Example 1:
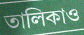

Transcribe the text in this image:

তালিকাও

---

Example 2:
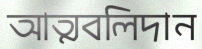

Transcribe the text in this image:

আত্মবলিদান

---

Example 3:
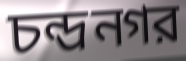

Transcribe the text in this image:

চন্দ্রনগর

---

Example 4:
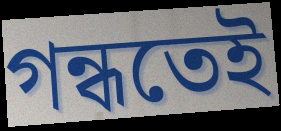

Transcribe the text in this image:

গন্ধতেই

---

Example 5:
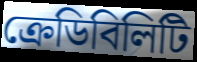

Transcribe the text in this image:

ক্রেডিবিলিটি